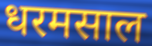
धरमसाल